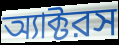
অ্যাক্টরস